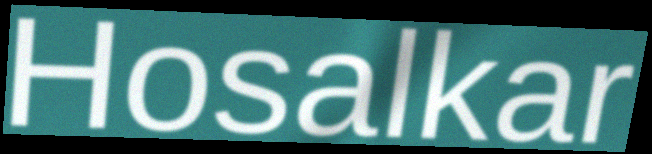
Hosalkar